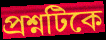
প্রশ্নটিকে